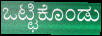
ಒಟ್ಟಿಕೊಂಡು